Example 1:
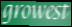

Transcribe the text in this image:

growest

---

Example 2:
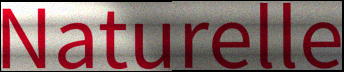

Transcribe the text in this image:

Naturelle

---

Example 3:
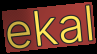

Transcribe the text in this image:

ekal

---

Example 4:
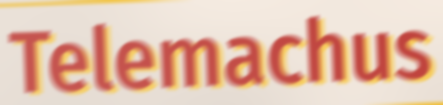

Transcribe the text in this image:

Telemachus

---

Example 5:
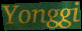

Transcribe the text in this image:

Yonggi